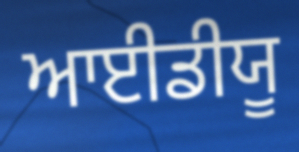
ਆਈਡੀਯੂ